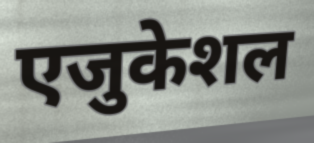
एजुकेशल